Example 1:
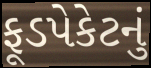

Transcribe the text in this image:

ફૂડપેકેટનું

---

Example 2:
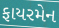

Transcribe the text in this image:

ફાયરમેન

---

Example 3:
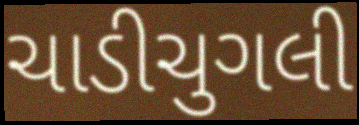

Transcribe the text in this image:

ચાડીચુગલી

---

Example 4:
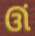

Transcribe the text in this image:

ઊં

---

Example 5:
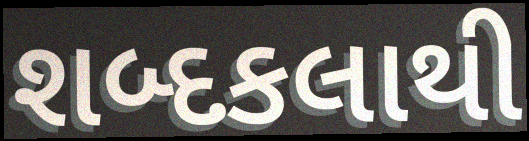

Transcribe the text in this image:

શબ્દકલાથી